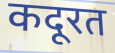
कदूरत